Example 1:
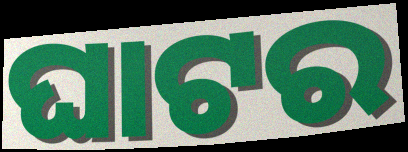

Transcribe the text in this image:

ଘାଟର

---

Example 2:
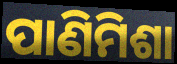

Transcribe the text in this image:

ପାଣିମିଶା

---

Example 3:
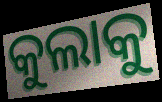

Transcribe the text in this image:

କୁଲାକୁ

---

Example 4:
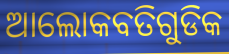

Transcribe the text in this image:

ଆଲୋକବତିଗୁଡିକ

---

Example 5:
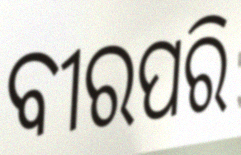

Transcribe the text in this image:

ବୀରପରି